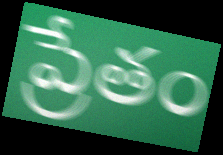
ప్రేతం